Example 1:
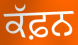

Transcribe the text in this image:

ਕੱਫ਼ਨ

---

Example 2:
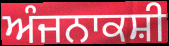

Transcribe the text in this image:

ਅੰਜਨਾਕਸ਼ੀ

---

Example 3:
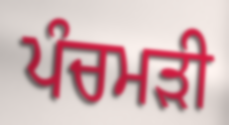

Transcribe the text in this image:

ਪੰਚਮੜੀ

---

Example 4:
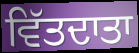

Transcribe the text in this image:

ਵਿੱਤਦਾਤਾ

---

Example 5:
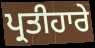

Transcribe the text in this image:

ਪ੍ਰਤੀਹਾਰੇ